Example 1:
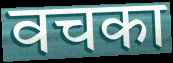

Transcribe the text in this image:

वचका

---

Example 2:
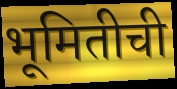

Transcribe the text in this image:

भूमितीची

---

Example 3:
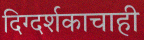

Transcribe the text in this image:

दिग्दर्शकाचाही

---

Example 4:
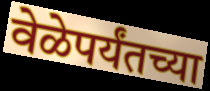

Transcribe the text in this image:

वेळेपर्यंतच्या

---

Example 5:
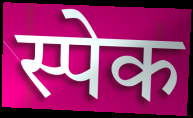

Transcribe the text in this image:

स्पेक